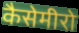
कैसेमीरो